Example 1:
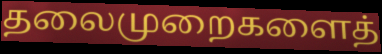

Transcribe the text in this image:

தலைமுறைகளைத்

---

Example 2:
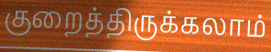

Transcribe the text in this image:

குறைத்திருக்கலாம்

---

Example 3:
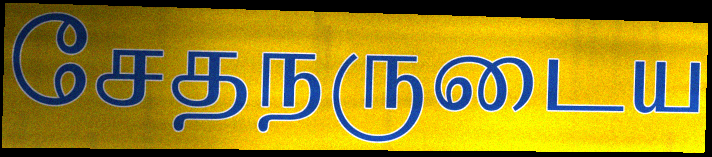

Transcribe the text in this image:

சேதநருடைய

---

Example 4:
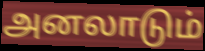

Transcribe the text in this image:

அனலாடும்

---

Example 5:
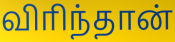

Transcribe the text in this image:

விரிந்தான்